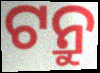
ଟନ୍ରୁ